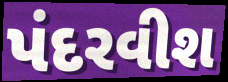
પંદરવીશ